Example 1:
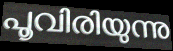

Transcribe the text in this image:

പൂവിരിയുന്നു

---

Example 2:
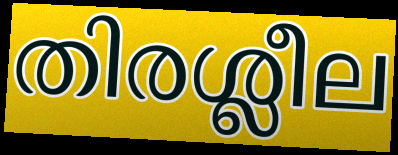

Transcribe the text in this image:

തിരശ്ലീല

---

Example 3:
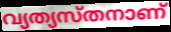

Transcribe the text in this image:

വ്യത്യസ്തനാണ്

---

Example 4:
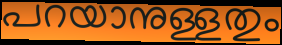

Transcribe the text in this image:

പറയാനുള്ളതും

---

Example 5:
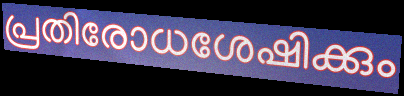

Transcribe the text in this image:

പ്രതിരോധശേഷിക്കും